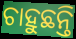
ଚାହୁଛନ୍ତି